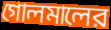
গোলমালের